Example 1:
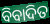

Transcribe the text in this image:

ବିବାଦିତ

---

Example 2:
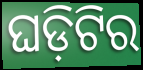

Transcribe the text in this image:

ଘଡ଼ିଟିର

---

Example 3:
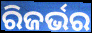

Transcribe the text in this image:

ରିଜର୍ଭର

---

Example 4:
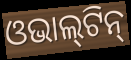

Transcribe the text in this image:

ଓଭାଲ୍‍ଟିନ୍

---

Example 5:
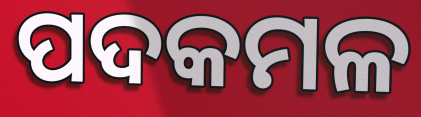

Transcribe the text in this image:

ପଦକମଳ